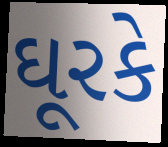
ઘૂરકે